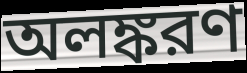
অলঙ্করণ